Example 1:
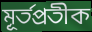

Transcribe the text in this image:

মূর্তপ্রতীক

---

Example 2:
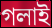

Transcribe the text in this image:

গলাই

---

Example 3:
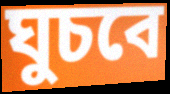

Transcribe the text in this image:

ঘুচবে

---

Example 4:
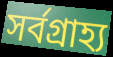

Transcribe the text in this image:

সর্বগ্রাহ্য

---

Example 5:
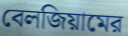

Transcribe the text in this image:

বেলজিয়ামের